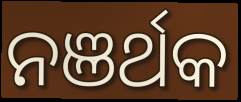
ନଞର୍ଥକ